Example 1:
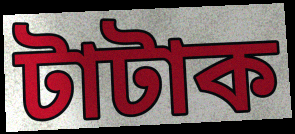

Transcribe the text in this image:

টাটাক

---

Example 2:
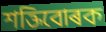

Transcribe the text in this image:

শক্তিবোৰক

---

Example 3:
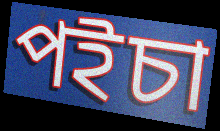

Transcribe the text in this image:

পইচা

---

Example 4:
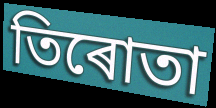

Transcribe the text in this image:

তিৰোতা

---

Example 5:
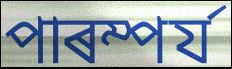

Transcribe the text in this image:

পাৰম্পৰ্য